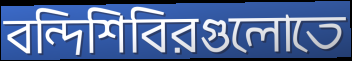
বন্দিশিবিরগুলোতে